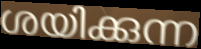
ശയിക്കുന്ന